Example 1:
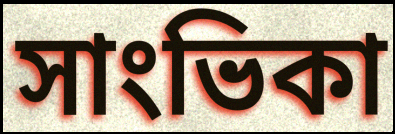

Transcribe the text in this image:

সাংভিকা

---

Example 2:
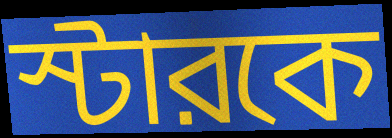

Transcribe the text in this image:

স্টারকে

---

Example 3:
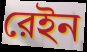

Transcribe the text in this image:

রেইন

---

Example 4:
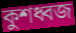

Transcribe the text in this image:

কুশধ্বজ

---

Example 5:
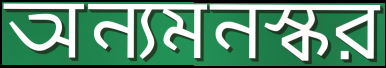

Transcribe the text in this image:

অন্যমনস্কর